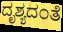
ದೃಶ್ಯದಂತೆ